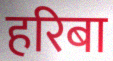
हरिबा